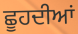
ਛੂਹਦੀਆਂ